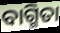
ବାଗ୍ମିତା